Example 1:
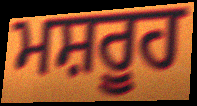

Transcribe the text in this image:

ਮਸ਼ਰੂਹ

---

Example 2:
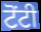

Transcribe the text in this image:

ਟੋਂਟੀ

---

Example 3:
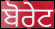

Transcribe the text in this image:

ਬੋਰੇਟ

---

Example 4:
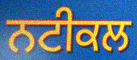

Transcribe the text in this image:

ਨਟੀਕਲ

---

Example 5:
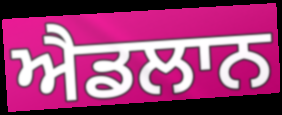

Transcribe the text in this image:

ਐਡਲਾਨ